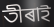
তীৰাই